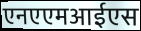
एनएएमआईएस